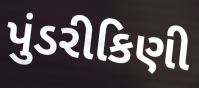
પુંડરીકિણી